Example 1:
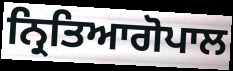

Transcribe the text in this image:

ਨ੍ਰਿਤਿਆਗੋਪਾਲ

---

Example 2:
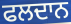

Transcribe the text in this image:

ਫਲਦਾਨ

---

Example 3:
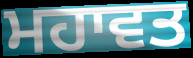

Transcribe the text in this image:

ਮਹਾਵਤ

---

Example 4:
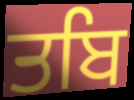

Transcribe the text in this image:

ਤਬਿ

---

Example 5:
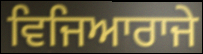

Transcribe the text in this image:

ਵਿਜਿਆਰਾਜੇ